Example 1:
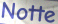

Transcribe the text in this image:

Notte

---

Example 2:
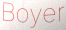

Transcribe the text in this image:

Boyer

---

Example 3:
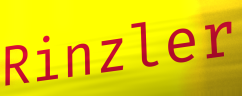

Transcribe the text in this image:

Rinzler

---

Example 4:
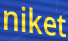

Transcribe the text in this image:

niket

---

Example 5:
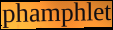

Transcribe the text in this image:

phamphlet